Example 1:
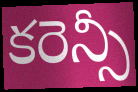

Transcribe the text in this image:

కరెన్సీ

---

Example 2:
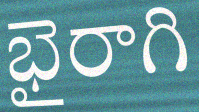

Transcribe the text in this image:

భైరాగి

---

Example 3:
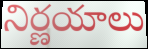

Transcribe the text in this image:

నిర్ణయాలు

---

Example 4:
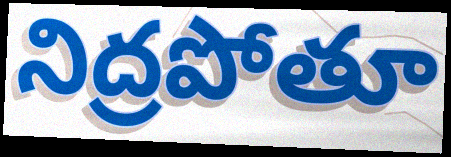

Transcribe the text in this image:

నిద్రపోతూ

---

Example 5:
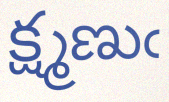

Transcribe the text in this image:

క్ష్మణుఁ